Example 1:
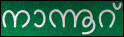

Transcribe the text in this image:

നാന്നൂറ്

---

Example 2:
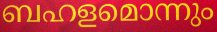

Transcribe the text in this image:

ബഹളമൊന്നും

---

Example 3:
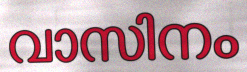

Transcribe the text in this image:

വാസിനം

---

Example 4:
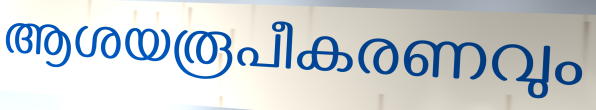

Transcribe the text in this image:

ആശയരൂപീകരണവും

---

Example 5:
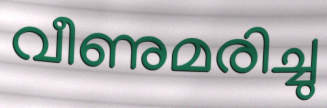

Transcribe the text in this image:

വീണുമരിച്ചു